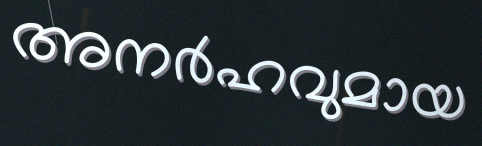
അനർഹവുമായ